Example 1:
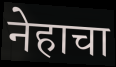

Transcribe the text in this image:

नेहाचा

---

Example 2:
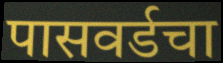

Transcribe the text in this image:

पासवर्डचा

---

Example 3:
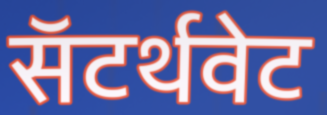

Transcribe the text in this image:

सॅटर्थवेट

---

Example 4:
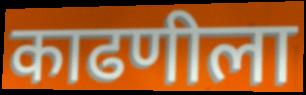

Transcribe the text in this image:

काढणीला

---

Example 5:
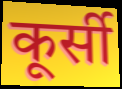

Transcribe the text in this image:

कूर्सी